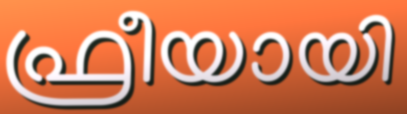
ഫ്രീയായി